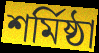
শর্মিষ্ঠা